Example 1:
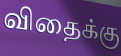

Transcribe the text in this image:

விதைக்கு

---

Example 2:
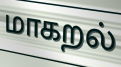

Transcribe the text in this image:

மாகறல்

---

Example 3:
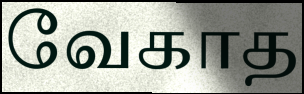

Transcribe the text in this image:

வேகாத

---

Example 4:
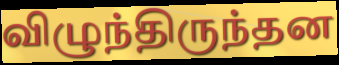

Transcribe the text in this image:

விழுந்திருந்தன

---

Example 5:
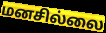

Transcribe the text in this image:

மனசில்லை